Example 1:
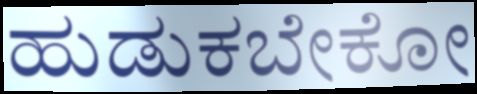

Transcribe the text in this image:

ಹುಡುಕಬೇಕೋ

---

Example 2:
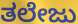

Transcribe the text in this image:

ತಲೇಜು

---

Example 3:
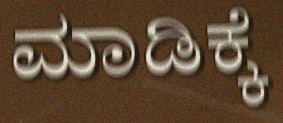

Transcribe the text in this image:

ಮಾಡಿಕ್ಕೆ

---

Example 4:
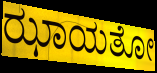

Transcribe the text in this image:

ಝಾಯತೋ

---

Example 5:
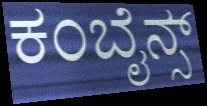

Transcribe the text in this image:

ಕಂಬೈನ್ಸ್